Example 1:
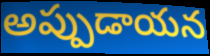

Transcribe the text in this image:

అప్పుడాయన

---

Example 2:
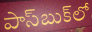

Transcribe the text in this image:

పాస్‌బుక్‌లో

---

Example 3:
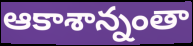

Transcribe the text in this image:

ఆకాశాన్నంతా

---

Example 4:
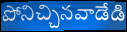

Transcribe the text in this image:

పోనిచ్చినవాడేడి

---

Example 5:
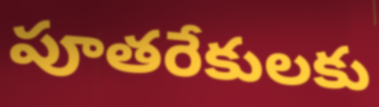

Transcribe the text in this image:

పూతరేకులకు